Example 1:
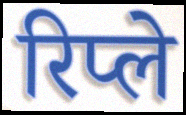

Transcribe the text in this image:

रिप्ले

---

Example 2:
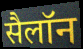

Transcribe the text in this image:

सैलॉन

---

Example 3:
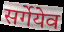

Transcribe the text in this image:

सर्गेयेव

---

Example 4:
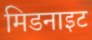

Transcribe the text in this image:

मिडनाइट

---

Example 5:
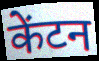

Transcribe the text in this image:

केंटन